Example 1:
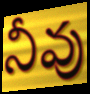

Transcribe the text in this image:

నీవు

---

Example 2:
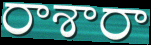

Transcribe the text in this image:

రాశారా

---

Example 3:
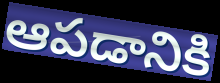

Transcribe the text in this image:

ఆపడానికి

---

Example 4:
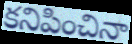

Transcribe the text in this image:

కనిపించినా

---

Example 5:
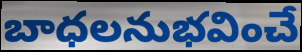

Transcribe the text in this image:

బాధలనుభవించే